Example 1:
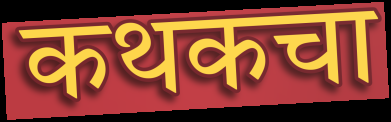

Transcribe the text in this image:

कथकचा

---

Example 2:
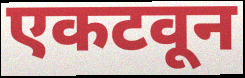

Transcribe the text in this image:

एकटवून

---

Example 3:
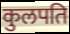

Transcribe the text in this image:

कुलपति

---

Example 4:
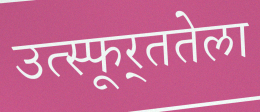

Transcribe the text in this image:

उत्स्फूर्ततेला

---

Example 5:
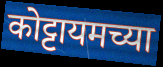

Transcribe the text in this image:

कोट्टायमच्या